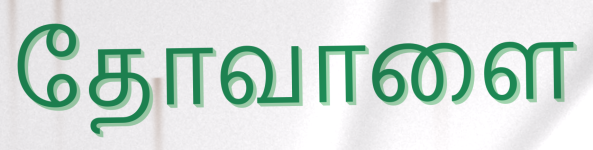
தோவாளை